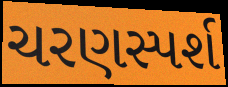
ચરણસ્પર્શ